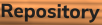
Repository